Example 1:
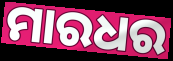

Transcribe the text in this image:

ମାରଧର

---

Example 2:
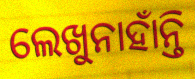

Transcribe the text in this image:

ଲେଖୁନାହାଁନ୍ତି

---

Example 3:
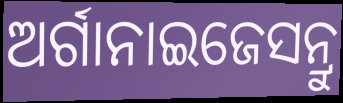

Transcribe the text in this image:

ଅର୍ଗାନାଇଜେସନ୍ରୁ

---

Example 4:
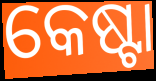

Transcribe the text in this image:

କେଷ୍ଟା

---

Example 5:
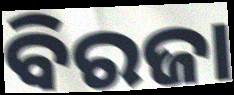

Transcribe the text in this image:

ବିରଜା